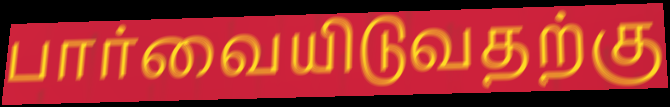
பார்வையிடுவதற்கு